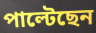
পাল্টেছেন